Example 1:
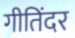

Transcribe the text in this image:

गीतिंदर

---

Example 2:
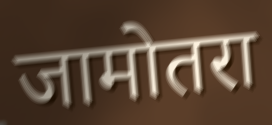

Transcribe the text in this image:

जामोतरा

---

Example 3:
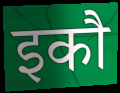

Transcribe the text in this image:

इकौ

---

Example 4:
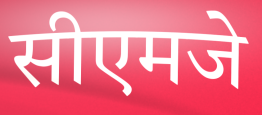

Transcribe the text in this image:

सीएमजे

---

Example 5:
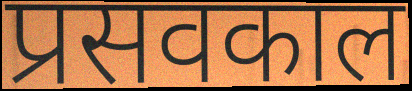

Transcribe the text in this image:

प्रसवकाल